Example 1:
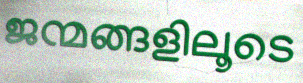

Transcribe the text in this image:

ജന്മങ്ങളിലൂടെ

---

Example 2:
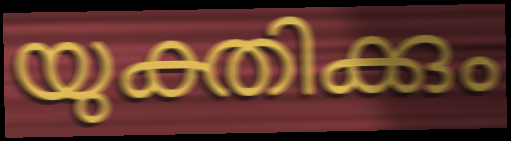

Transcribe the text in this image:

യുക്തിക്കും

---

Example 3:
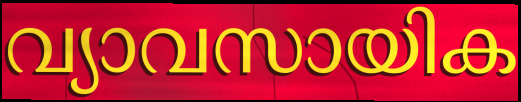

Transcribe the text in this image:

വ്യാവസായിക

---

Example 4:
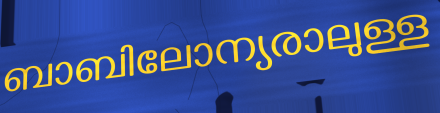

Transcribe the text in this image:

ബാബിലോന്യരാലുള്ള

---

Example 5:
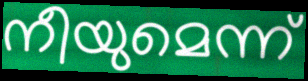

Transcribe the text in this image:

നീയുമെന്ന്